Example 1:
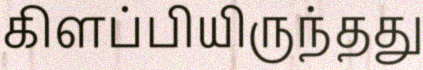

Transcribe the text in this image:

கிளப்பியிருந்தது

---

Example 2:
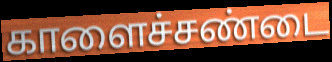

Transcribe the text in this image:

காளைச்சண்டை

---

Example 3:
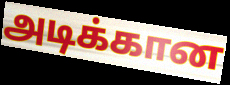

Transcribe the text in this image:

அடிக்கான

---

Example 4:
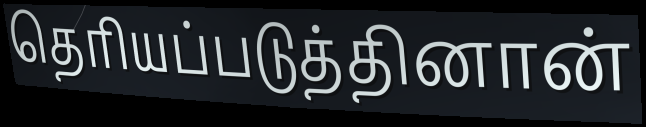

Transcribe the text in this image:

தெரியப்படுத்தினான்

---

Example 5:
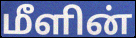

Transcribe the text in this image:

மீளின்